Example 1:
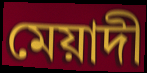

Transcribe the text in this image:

মেয়াদী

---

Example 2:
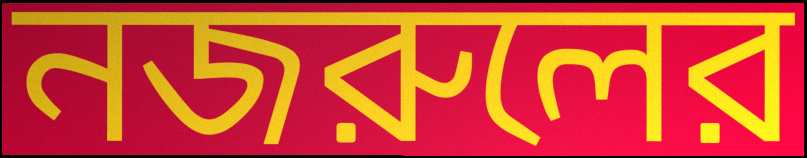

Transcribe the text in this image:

নজরুলের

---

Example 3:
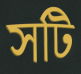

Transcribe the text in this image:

সটি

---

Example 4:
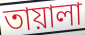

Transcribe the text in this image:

তায়ালা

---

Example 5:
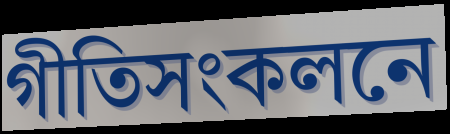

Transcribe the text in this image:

গীতিসংকলনে